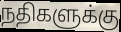
நதிகளுக்கு